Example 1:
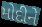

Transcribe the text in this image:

મોદીને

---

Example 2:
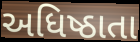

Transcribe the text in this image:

અધિષ્ઠાતા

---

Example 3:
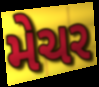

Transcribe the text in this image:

મેચર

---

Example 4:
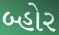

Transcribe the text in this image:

બ્હોર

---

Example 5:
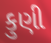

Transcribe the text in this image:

કુણી